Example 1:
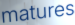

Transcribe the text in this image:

matures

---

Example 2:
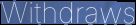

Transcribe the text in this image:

Withdraws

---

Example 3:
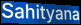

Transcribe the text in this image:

Sahityana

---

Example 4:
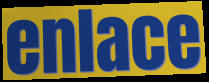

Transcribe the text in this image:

enlace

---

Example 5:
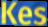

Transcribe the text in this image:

Kes